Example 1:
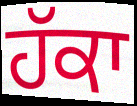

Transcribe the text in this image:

ਹੱਕਾ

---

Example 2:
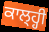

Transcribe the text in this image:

ਕਾਲ੍ਹ੍ਹੀ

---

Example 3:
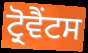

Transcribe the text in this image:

ਟ੍ਰੋਵੈਂਟਸ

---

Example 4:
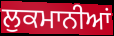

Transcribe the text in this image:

ਲੁਕਮਾਨੀਆਂ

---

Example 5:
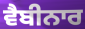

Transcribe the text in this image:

ਵੈਬੀਨਾਰ